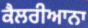
ਕੈਲਰੀਆਨਾ